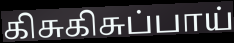
கிசுகிசுப்பாய்